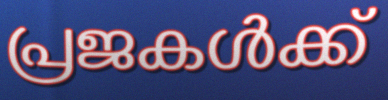
പ്രജകൾക്ക്